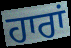
ਹਾਰਾਂ